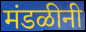
मंडळीनी